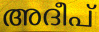
അദീപ്